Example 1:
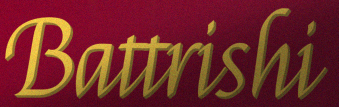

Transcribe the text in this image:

Battrishi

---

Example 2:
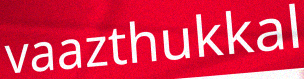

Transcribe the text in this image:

vaazthukkal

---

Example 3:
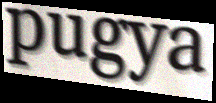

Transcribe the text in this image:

pugya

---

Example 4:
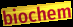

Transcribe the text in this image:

biochem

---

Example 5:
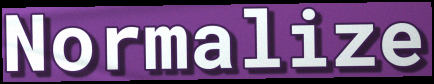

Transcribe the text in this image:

Normalize